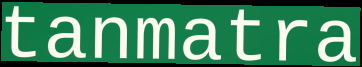
tanmatra